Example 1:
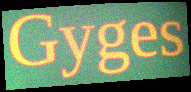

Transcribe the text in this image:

Gyges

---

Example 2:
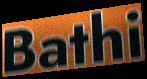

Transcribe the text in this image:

Bathi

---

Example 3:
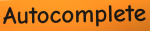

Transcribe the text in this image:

Autocomplete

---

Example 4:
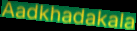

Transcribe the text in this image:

Aadkhadakala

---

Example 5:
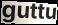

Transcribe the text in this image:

guttu